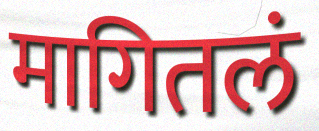
मागितलं